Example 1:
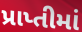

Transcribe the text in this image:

પ્રાપ્તીમાં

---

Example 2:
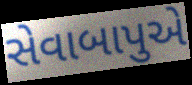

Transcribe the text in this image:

સેવાબાપુએ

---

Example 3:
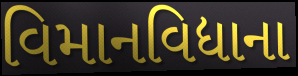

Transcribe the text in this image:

વિમાનવિદ્યાના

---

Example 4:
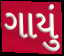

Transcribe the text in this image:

ગાયું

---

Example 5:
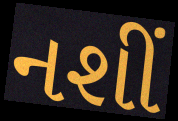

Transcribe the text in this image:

નશીં